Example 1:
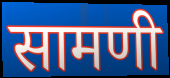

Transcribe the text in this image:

सामणी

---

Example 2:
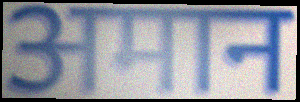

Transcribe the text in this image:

अमान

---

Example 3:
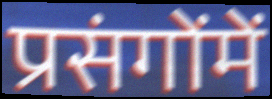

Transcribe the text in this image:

प्रसंगोंमें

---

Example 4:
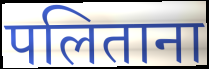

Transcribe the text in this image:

पलिताना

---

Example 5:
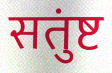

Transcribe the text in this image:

सतुंष्ट